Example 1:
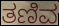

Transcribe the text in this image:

ತಣಿವ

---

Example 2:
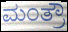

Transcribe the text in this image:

ಮಂತ್ರೌ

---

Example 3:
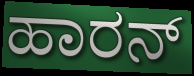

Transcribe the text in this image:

ಹಾರನ್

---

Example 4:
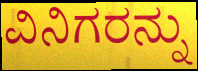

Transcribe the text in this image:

ವಿನಿಗರನ್ನು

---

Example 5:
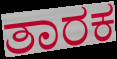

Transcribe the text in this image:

ತಾರಕ